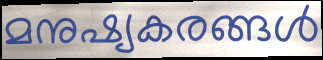
മനുഷ്യകരങ്ങൾ